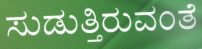
ಸುಡುತ್ತಿರುವಂತೆ